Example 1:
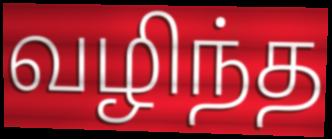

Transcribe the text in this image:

வழிந்த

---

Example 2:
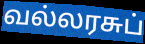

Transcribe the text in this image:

வல்லரசுப்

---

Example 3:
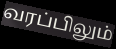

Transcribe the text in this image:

வரப்பிலும்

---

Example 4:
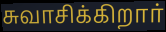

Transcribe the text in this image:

சுவாசிக்கிறார்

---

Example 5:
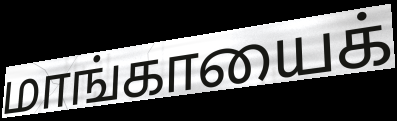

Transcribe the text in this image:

மாங்காயைக்